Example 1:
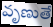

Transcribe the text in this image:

వృణుతే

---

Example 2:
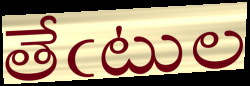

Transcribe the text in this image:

తేఁటుల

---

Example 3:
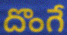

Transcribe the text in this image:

దొంగే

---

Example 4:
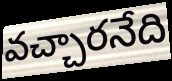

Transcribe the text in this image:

వచ్చారనేది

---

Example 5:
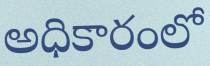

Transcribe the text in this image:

అధికారంలో